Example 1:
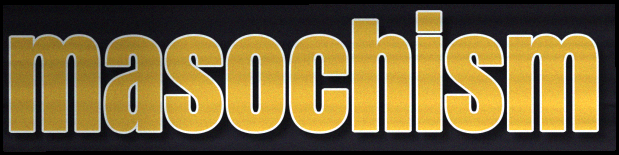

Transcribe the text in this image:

masochism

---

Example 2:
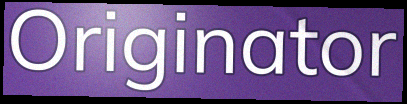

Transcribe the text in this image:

Originator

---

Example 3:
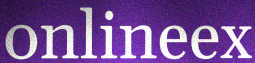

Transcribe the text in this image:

onlineex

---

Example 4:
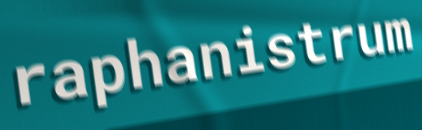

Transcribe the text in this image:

raphanistrum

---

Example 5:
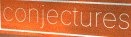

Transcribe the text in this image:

conjectures